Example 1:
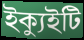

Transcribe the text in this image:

ইক্যুইটি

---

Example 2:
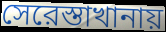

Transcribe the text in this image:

সেরেস্তাখানায়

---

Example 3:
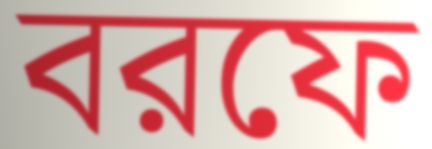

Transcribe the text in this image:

বরফে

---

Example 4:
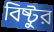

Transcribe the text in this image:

বিষ্টুর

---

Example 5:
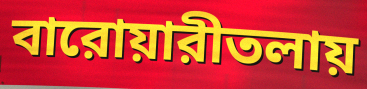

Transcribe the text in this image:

বারোয়ারীতলায়